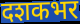
दशकभर